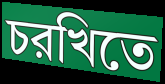
চরখিতে